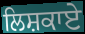
ਲਿਸ਼ਕਾਏ